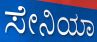
ಸೇನಿಯಾ